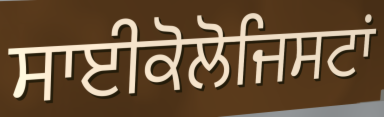
ਸਾਈਕੋਲੋਜਿਸਟਾਂ